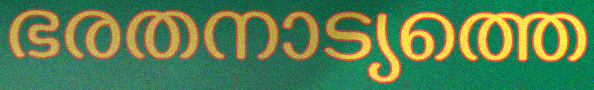
ഭരതനാട്യത്തെ